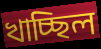
খাচ্ছিল